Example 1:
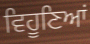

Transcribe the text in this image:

ਵਿਹੂਣਿਆਂ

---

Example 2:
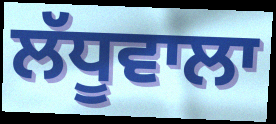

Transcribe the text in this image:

ਲੱਧੂਵਾਲਾ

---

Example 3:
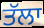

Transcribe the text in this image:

ਤੱਲਾ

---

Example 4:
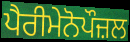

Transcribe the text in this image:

ਪੈਰੀਮੇਨੋਪੌਜ਼ਲ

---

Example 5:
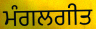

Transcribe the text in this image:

ਮੰਗਲਗੀਤ